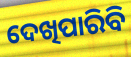
ଦେଖିପାରିବି